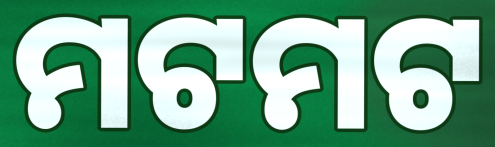
ମଟମଟ